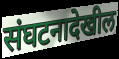
संघटनादेखील